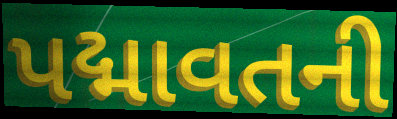
પદ્માવતની